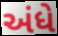
અંધે